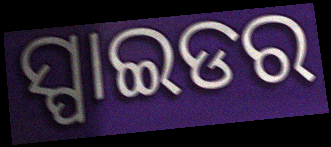
ସ୍ପାଇଡର